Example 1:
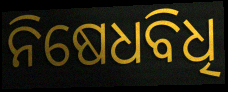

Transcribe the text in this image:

ନିଷେଧବିଧି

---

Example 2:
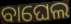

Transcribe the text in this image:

ବାଘେଲ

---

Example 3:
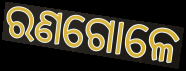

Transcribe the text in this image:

ରଣଗୋଳେ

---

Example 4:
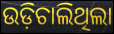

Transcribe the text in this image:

ଉଡ଼ିଚାଲିଥିଲା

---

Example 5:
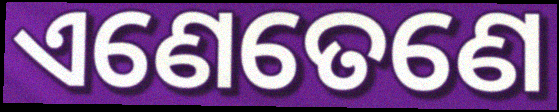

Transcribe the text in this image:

ଏଣେତେଣେ